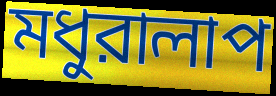
মধুরালাপ